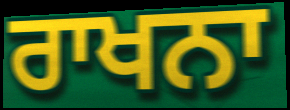
ਰਾਖਨਾ